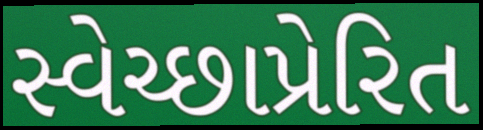
સ્વેચ્છાપ્રેરિત